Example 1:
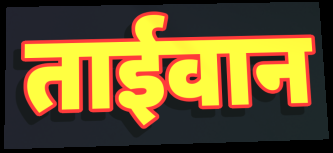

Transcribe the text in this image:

ताईवान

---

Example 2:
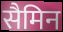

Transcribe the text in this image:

सैमिन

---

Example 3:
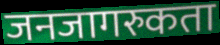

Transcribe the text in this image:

जनजागरुकता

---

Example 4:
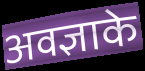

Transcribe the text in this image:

अवज्ञाके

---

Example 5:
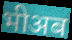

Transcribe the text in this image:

भीअब